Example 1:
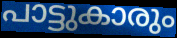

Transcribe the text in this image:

പാട്ടുകാരും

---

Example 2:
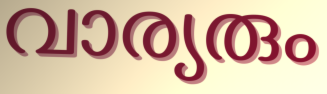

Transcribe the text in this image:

വാര്യരും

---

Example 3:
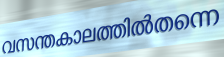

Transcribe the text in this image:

വസന്തകാലത്തിൽതന്നെ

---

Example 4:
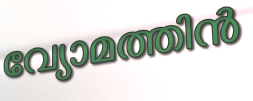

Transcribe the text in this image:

വ്യോമത്തിൻ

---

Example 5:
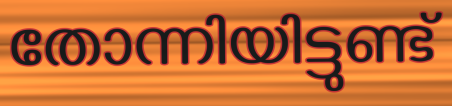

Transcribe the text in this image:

തോന്നിയിട്ടുണ്ട്